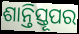
ଶାନ୍ତିସ୍ତୂପର